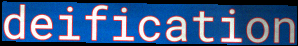
deification